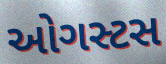
ઓગસ્ટસ